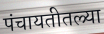
पंचायतीतल्या